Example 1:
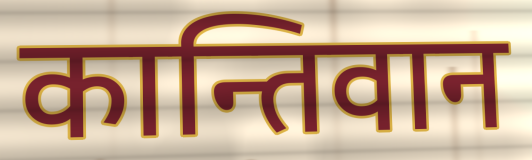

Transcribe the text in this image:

कान्तिवान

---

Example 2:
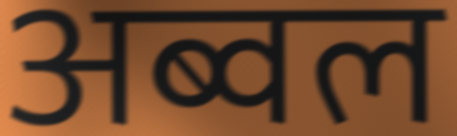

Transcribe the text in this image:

अब्वल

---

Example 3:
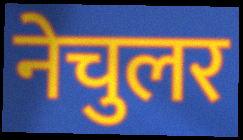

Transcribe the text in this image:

नेचुलर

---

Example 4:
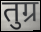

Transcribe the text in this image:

तुग्र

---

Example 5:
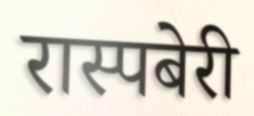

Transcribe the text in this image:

रास्पबेरी